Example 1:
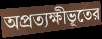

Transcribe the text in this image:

অপ্রত্যক্ষীভূতের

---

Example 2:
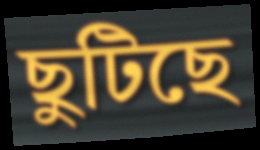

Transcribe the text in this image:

ছুটিছে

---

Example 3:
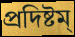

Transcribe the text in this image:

প্রদিষ্টম্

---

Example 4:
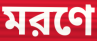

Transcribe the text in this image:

মরণে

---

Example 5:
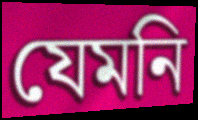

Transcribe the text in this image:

যেমনি